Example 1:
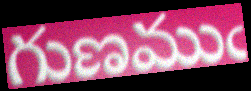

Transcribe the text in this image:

గుణముఁ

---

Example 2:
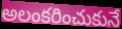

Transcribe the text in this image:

అలంకరించుకునే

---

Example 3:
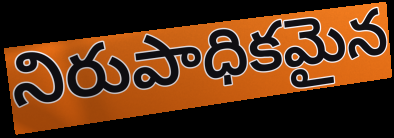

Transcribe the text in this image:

నిరుపాధికమైన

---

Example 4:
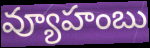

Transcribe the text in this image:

వ్యూహంబు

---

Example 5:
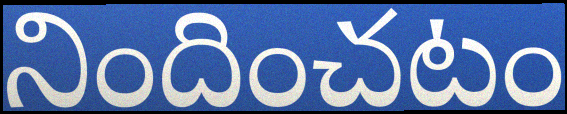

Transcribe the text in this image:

నిందించటం